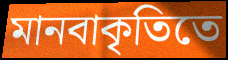
মানবাকৃতিতে